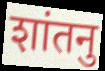
शांतनु